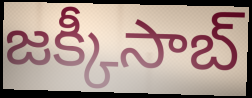
జక్కీసాబ్